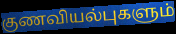
குணவியல்புகளும்